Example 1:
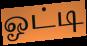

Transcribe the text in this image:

ஓட்டி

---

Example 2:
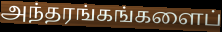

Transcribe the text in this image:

அந்தரங்கங்களைப்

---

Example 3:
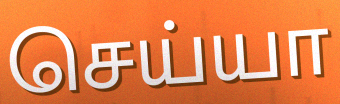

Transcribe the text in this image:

செய்யா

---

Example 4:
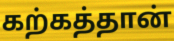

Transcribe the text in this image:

கற்கத்தான்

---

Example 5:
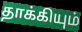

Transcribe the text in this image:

தாக்கியும்